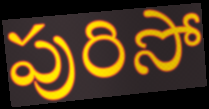
పురిసో